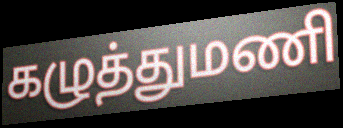
கழுத்துமணி